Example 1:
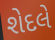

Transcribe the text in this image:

શેદલે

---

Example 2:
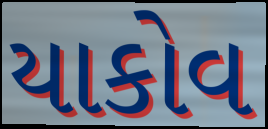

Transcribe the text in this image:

યાકોવ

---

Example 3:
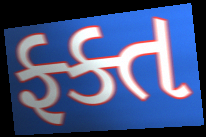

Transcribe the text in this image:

ફ્ક્ત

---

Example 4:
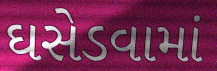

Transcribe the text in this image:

ઘસેડવામાં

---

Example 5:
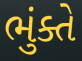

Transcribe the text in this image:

ભુંક્તે